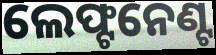
ଲେଫ୍ଟନେଣ୍ଟ